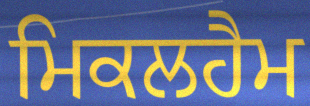
ਮਿਕਲਹੈਮ